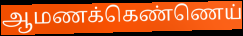
ஆமணக்கெண்ணெய்